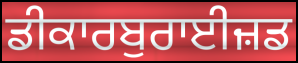
ਡੀਕਾਰਬੁਰਾਈਜ਼ਡ